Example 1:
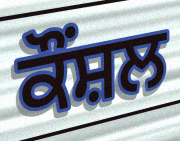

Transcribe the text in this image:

ਕੌਂਸ਼ਲ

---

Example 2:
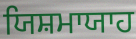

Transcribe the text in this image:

ਯਿਸ਼ਮਾਯਾਹ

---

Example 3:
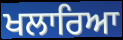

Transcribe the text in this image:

ਖਲਾਰਿਆ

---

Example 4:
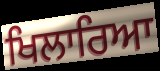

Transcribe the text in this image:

ਖਿਲਾਰਿਆ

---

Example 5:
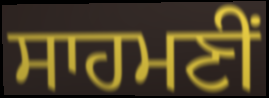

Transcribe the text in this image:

ਸਾਹਮਣੀਂ